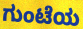
ಗುಂಟೆಯ